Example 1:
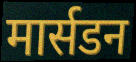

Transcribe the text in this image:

मार्सडन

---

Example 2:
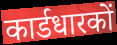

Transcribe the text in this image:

कार्डधारकों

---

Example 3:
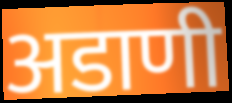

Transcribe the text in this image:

अडाणी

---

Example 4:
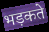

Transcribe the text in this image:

भड़कते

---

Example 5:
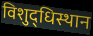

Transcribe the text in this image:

विशुद्धिस्थान